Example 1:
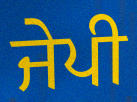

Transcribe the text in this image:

ਜੇਪੀ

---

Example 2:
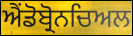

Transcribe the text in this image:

ਐਂਡੋਬ੍ਰੋਨਚਿਅਲ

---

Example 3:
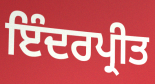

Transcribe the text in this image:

ਇੰਦਰਪ੍ਰੀਤ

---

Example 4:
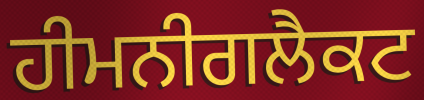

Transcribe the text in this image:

ਹੀਮਨੀਗਲੈਕਟ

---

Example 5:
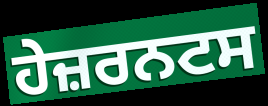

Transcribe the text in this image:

ਹੇਜ਼ਰਨਟਸ